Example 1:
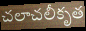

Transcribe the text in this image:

చలాచలీకృత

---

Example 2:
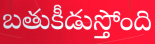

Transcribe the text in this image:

బతుకీడుస్తోంది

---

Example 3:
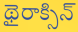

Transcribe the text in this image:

థైరాక్సిన్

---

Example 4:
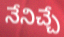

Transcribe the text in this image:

నేనిచ్చే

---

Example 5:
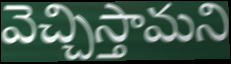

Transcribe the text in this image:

వెచ్చిస్తామని